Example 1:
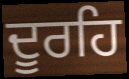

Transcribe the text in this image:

ਦੂਰਹਿ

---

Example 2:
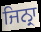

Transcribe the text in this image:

ਜਿਨ੍ਰਾ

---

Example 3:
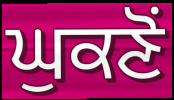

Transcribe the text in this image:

ਘੁਕਣੋਂ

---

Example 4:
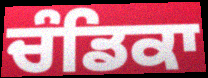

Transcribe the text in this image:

ਚੰਡਿਕਾ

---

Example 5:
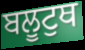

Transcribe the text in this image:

ਬਲੂਟੁਥ